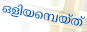
ഒളിയമ്പെയ്ത്